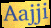
Aajji